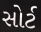
સોર્ટ